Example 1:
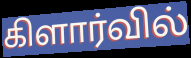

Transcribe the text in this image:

கிளார்வில்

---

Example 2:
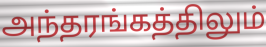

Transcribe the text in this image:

அந்தரங்கத்திலும்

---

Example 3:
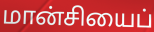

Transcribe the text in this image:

மான்சியைப்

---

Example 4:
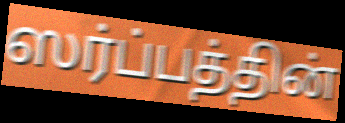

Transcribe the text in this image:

ஸர்ப்பத்தின்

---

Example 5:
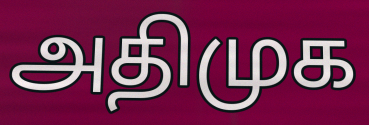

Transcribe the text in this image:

அதிமுக